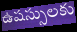
ఉషస్సులకు